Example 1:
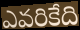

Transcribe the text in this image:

ఎవరికేది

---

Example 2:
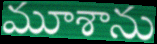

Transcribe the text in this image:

మూశాను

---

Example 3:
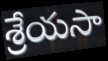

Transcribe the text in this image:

శ్రేయసా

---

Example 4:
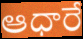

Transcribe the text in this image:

ఆధారే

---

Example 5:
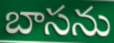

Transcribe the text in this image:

బాసను